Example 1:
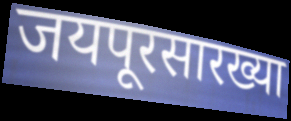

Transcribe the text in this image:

जयपूरसारख्या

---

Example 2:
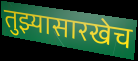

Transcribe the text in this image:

तुझ्यासारखेच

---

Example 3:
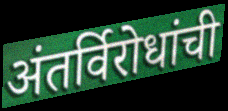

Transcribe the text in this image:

अंतर्विरोधांची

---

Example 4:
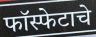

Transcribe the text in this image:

फॉस्फेटाचे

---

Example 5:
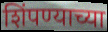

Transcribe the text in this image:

शिंपण्याच्या